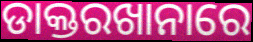
ଡାକ୍ତରଖାନାରେ